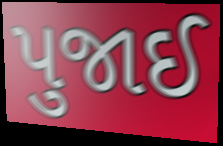
પુજાઈ